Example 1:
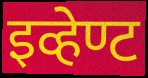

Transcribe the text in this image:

इव्हेण्ट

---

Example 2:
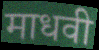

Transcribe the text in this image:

माधवी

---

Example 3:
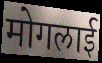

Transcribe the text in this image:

मोगलाई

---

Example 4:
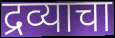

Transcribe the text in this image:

द्रव्याचा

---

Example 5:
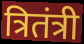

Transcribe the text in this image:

त्रितंत्री